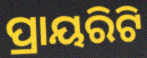
ପ୍ରାୟରିଟି